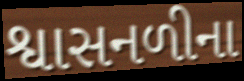
શ્વાસનળીના